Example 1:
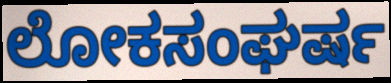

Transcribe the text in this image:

ಲೋಕಸಂಘರ್ಷ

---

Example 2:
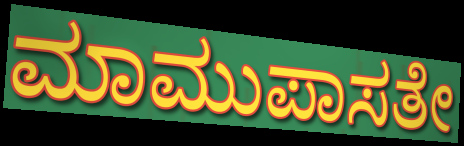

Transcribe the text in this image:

ಮಾಮುಪಾಸತೇ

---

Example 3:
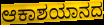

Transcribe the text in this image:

ಆಕಾಶಯಾನದ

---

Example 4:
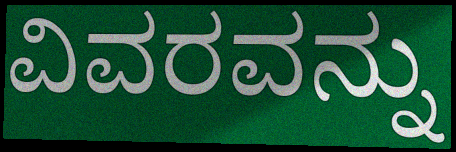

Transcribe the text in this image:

ವಿವರವನ್ನು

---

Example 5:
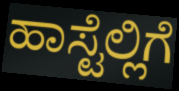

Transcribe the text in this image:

ಹಾಸ್ಟೆಲ್ಲಿಗೆ